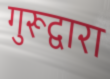
गुरूद्वारा